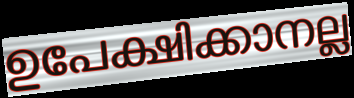
ഉപേക്ഷിക്കാനല്ല